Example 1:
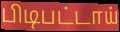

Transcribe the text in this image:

பிடிபட்டாய்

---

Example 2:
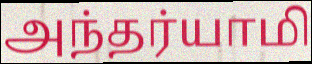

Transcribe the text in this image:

அந்தர்யாமி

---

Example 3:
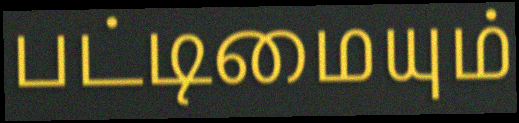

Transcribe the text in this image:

பட்டிமையும்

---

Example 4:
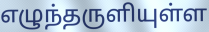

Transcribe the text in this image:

எழுந்தருளியுள்ள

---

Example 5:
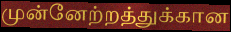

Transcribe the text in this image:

முன்னேற்றத்துக்கான